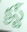
క్రస్ట్